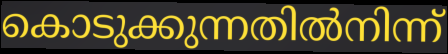
കൊടുക്കുന്നതിൽനിന്ന്